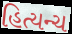
હિત્યન્ચ